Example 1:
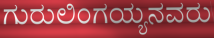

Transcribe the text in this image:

ಗುರುಲಿಂಗಯ್ಯನವರು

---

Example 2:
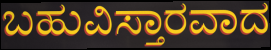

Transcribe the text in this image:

ಬಹುವಿಸ್ತಾರವಾದ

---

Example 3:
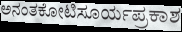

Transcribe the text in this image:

ಅನಂತಕೋಟಿಸೂರ್ಯಪ್ರಕಾಶ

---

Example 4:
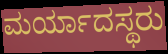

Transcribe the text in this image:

ಮರ್ಯಾದಸ್ಥರು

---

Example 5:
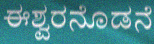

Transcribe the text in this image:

ಈಶ್ವರನೊಡನೆ